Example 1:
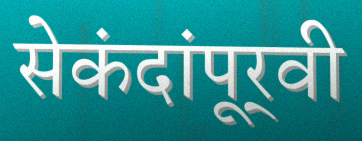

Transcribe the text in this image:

सेकंदांपूर्वी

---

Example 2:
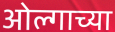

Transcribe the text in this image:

ओल्गाच्या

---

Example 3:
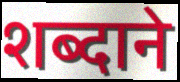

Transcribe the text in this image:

शब्दाने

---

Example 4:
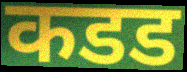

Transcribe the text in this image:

कडड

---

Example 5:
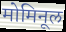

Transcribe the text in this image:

मोमिनूल